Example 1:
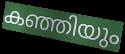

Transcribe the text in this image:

കഞ്ഞിയും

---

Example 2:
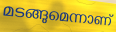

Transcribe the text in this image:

മടങ്ങുമെന്നാണ്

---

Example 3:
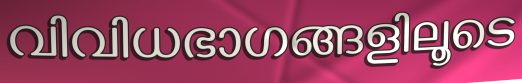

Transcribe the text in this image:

വിവിധഭാഗങ്ങളിലൂടെ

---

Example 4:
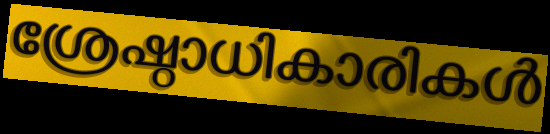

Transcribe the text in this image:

ശ്രേഷ്ഠാധികാരികൾ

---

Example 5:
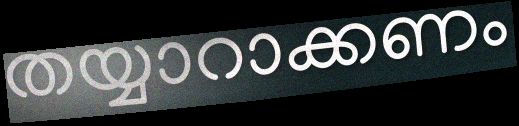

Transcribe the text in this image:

തയ്യാറാക്കണം